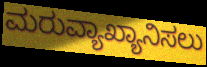
ಮರುವ್ಯಾಖ್ಯಾನಿಸಲು